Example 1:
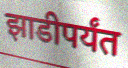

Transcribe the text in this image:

झाडीपर्यंत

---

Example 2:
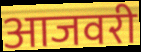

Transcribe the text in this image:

आजवरी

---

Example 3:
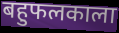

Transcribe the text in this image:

बहुफलकाला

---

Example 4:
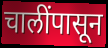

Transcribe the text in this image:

चालींपासून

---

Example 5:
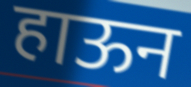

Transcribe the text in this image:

हाऊन